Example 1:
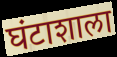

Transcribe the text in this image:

घंटाशाला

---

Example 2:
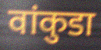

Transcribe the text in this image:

वांकुडा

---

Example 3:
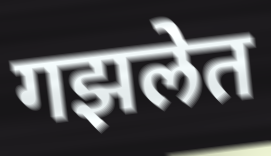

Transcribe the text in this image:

गझलेत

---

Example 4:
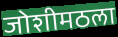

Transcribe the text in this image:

जोशीमठला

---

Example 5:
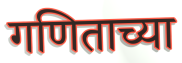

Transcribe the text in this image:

गणिताच्या